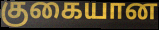
குகையான